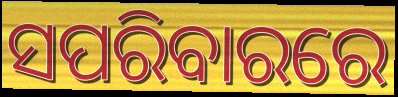
ସପରିବାରରେ